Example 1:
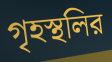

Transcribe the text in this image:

গৃহস্থলির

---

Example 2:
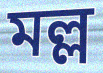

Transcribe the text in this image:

মল্ল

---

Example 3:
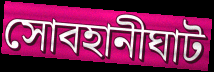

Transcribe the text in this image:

সোবহানীঘাট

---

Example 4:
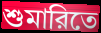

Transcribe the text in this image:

শুমারিতে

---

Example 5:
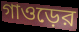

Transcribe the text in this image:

গাওড়ের